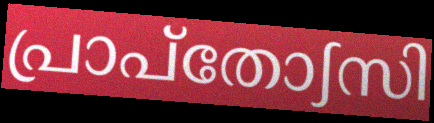
പ്രാപ്തോഽസി